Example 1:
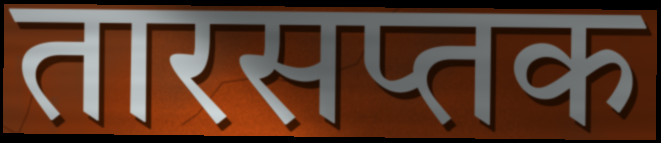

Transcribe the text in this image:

तारसप्तक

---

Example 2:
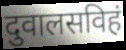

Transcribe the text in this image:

दुवालसविहं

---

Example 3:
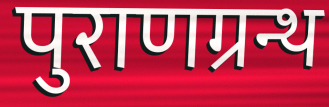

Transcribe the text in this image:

पुराणग्रन्थ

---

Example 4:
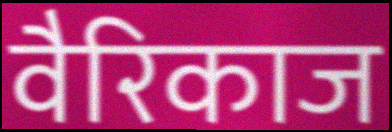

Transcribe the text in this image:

वैरिकाज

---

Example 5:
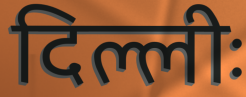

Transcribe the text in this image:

दिल्लीः